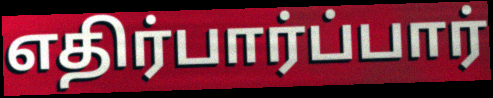
எதிர்பார்ப்பார்